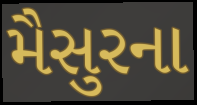
મૈસુરના